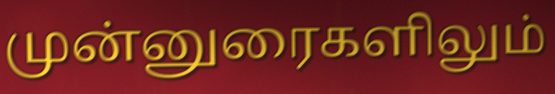
முன்னுரைகளிலும்